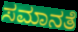
ಸಮಾನತೆ